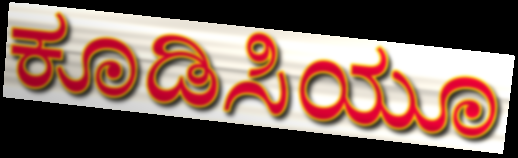
ಕೂಡಿಸಿಯೂ